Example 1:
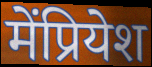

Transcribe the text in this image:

मेंप्रियेश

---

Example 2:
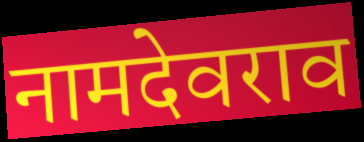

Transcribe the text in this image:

नामदेवराव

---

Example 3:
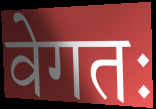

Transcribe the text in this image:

वेगतः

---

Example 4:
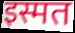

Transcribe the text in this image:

इस्मत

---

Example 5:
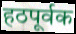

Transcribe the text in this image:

हठपूर्वक